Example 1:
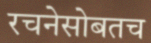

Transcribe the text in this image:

रचनेसोबतच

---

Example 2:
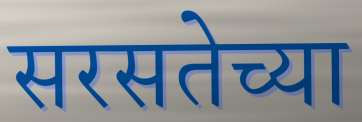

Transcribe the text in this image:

सरसतेच्या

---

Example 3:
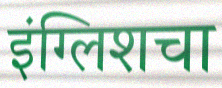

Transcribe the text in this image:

इंग्लिशचा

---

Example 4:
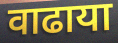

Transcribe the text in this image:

वाढाया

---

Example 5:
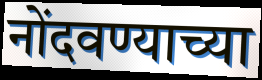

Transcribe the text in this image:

नोंदवण्याच्या